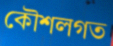
কৌশলগত